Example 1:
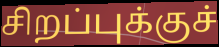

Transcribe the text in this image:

சிறப்புக்குச்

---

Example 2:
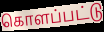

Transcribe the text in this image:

கொளப்பட்டு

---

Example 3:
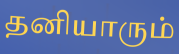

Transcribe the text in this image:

தனியாரும்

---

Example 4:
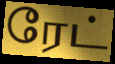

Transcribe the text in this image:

ரேட்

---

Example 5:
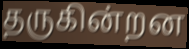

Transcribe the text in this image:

தருகின்றன